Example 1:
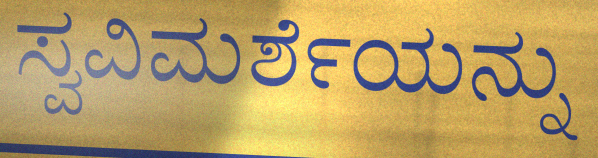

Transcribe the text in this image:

ಸ್ವವಿಮರ್ಶೆಯನ್ನು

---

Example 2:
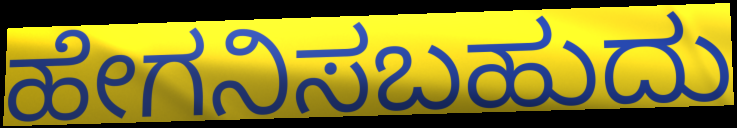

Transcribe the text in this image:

ಹೇಗನಿಸಬಹುದು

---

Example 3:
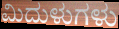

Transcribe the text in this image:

ಮಿದುಳುಗಳು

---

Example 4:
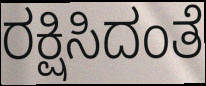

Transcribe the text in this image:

ರಕ್ಷಿಸಿದಂತೆ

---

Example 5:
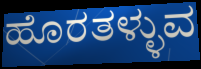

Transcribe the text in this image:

ಹೊರತಳ್ಳುವ